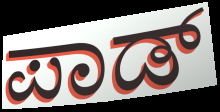
ಪಾಡ್